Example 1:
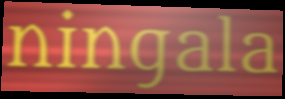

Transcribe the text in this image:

ningala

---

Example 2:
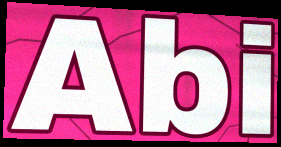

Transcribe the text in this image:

Abi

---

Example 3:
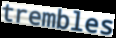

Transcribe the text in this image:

trembles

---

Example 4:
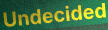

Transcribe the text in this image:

Undecided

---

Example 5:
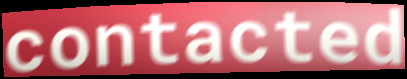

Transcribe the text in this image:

contacted